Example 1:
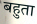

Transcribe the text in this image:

बहुता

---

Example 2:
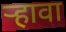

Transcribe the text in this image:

ऱ्हावा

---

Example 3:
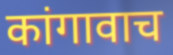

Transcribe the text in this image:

कांगावाच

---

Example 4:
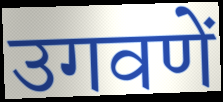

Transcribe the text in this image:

उगवणें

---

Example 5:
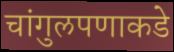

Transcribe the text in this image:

चांगुलपणाकडे